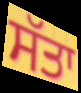
ਸੱਤਾ